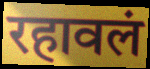
रहावलं